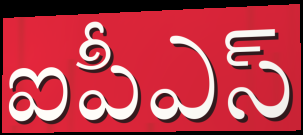
ఐపీఎస్